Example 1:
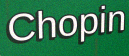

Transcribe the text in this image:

Chopin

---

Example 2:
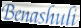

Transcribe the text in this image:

Benashuli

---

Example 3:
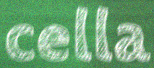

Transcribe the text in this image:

cella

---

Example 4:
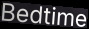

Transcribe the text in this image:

Bedtime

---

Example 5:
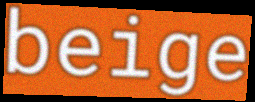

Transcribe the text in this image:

beige